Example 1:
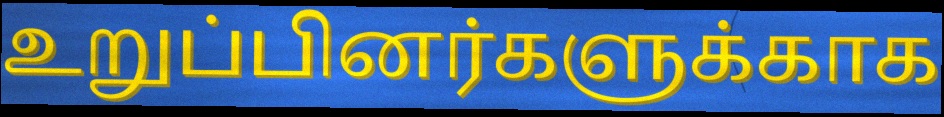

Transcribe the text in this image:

உறுப்பினர்களுக்காக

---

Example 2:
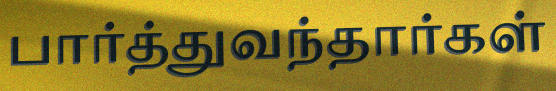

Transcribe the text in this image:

பார்த்துவந்தார்கள்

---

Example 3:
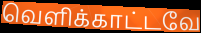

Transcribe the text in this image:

வெளிக்காட்டவே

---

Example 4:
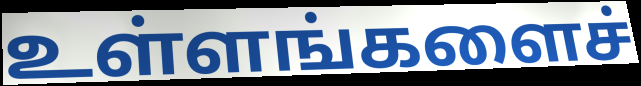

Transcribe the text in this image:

உள்ளங்களைச்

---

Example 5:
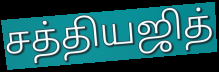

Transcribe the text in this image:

சத்தியஜித்